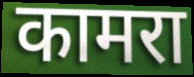
कामरा